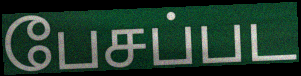
பேசப்பட